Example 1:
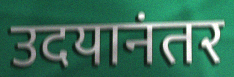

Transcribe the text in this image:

उदयानंतर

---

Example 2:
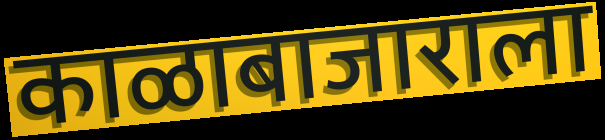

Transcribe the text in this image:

काळाबाजाराला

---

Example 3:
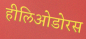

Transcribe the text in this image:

हीलिओडोरस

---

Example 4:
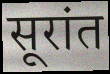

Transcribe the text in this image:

सूरांत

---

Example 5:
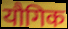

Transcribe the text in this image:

यौगिक